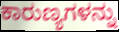
ಕಾರುಣ್ಯಗಳನ್ನು